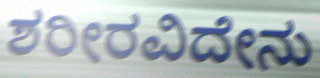
ಶರೀರವಿದೇನು